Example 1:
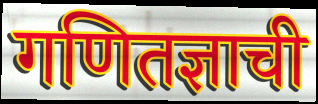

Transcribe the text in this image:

गणितज्ञाची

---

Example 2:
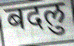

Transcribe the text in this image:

बदलु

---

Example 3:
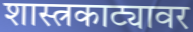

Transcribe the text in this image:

शास्त्रकाट्यावर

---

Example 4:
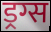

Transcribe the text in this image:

ड्रग्स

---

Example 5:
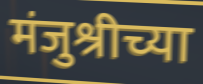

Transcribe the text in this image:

मंजुश्रीच्या